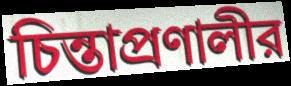
চিন্তাপ্রণালীর